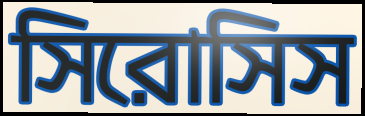
সিরোসিস